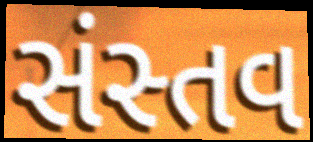
સંસ્તવ